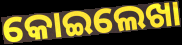
କୋଇଲେଖା